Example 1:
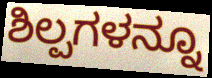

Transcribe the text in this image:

ಶಿಲ್ಪಗಳನ್ನೂ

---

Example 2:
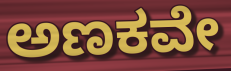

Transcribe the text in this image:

ಅಣಕವೇ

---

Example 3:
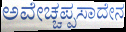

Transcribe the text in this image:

ಅವೇಚ್ಚಪ್ಪಸಾದೇನ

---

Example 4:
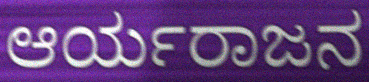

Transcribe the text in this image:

ಆರ್ಯರಾಜನ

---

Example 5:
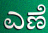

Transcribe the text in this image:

ಎಣೆ